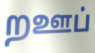
றஊப்